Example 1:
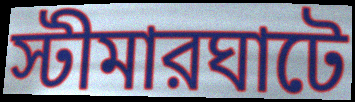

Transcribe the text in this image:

স্টীমারঘাটে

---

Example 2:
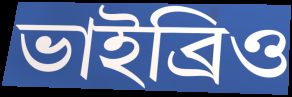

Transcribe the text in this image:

ভাইব্রিও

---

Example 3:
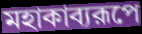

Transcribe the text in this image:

মহাকাব্যরূপে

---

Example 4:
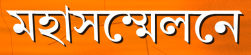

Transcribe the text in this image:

মহাসম্মেলনে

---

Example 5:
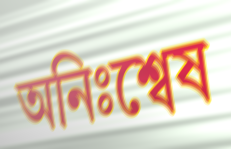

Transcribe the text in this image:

অনিঃশ্বেষ